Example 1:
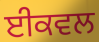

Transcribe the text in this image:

ਈਕਵਲ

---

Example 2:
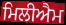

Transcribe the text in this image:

ਮਿਲੀਐਮ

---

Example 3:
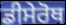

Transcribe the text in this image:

ਡੀਸੇਰੋਥ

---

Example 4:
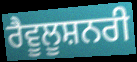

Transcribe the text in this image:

ਰੈਵੂਲੂਸ਼ਨਰੀ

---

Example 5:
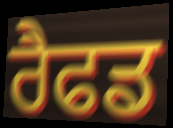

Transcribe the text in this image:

ਰੈਫਡ